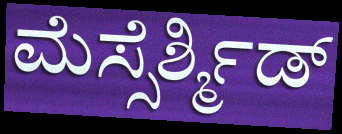
ಮೆಸ್ಸೆರ್ಶ್ಮಿಡ್